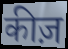
कीज़